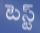
టెస్ట్